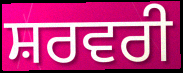
ਸ਼ਰਵਰੀ